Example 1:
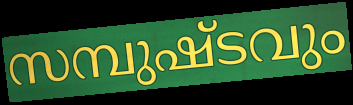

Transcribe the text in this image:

സമ്പുഷ്ടവും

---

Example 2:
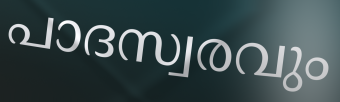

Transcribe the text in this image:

പാദസ്വരവും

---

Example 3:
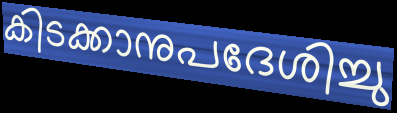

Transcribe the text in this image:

കിടക്കാനുപദേശിച്ചു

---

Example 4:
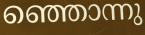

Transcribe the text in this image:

ഞ്ഞൊന്നു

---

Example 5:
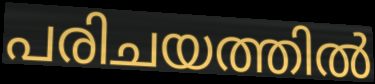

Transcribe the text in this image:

പരിചയത്തിൽ